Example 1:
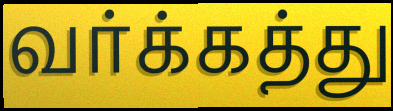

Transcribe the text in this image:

வர்க்கத்து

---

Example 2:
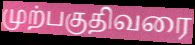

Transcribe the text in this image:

முற்பகுதிவரை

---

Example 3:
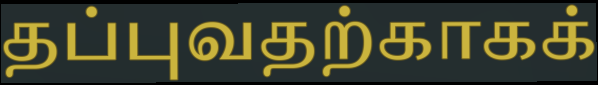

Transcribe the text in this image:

தப்புவதற்காகக்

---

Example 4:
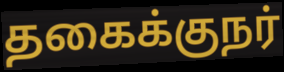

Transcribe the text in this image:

தகைக்குநர்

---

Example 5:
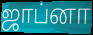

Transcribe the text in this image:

ஜாப்னா